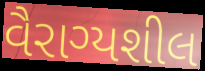
વૈરાગ્યશીલ